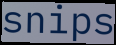
snips